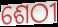
ଶେଠୀ